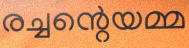
രച്ചന്റെയമ്മ